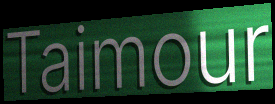
Taimour